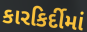
કારકિર્દીમાં